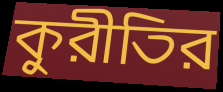
কুরীতির